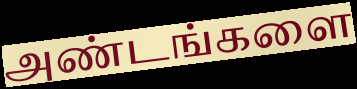
அண்டங்களை